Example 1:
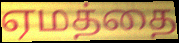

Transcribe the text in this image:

ஏமத்தை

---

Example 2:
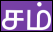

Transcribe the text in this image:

சம்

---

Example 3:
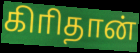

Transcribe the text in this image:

கிரிதான்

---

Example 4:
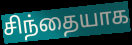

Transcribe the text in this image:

சிந்தையாக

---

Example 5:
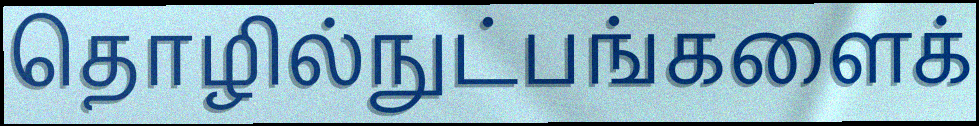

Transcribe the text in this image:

தொழில்நுட்பங்களைக்